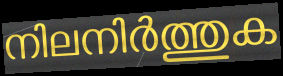
നിലനിർത്തുക